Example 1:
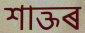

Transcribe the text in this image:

শাক্তৰ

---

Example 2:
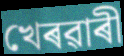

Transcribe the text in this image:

খেৰৱাৰী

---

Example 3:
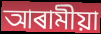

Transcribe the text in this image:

আৰামীয়া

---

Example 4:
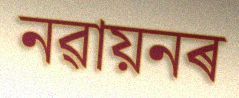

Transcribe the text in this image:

নৱায়নৰ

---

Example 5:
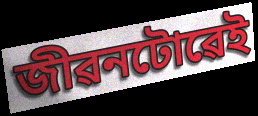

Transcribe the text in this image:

জীৱনটোৱেই